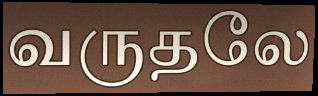
வருதலே